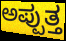
ಅಪ್ಪುತ್ತ